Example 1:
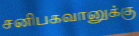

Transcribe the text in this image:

சனிபகவானுக்கு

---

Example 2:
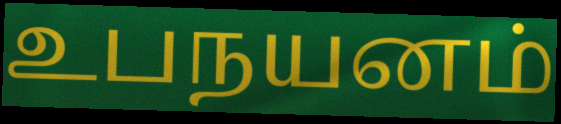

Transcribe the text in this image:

உபநயனம்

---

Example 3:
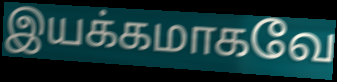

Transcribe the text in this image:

இயக்கமாகவே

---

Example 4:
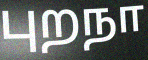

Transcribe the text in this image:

புறநா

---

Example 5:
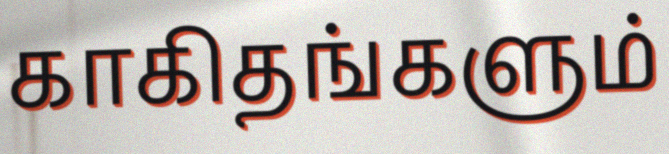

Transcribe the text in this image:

காகிதங்களும்